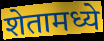
शेतामध्ये